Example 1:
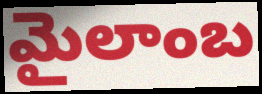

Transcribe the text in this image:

మైలాంబ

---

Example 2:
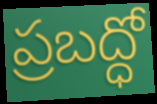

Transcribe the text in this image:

ప్రబద్ధో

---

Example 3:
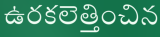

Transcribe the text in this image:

ఉరకలెత్తించిన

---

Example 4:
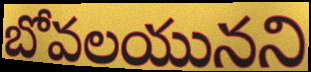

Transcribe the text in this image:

బోవలయునని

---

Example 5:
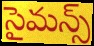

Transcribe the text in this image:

సైమన్స్